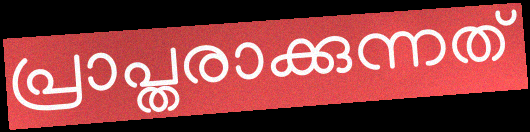
പ്രാപ്തരാക്കുന്നത്